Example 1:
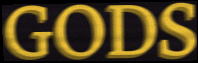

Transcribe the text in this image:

GODS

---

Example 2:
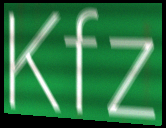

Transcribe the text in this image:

Kfz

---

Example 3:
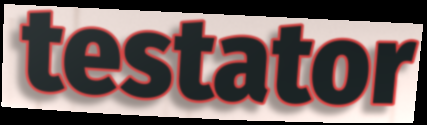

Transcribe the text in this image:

testator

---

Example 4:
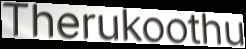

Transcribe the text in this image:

Therukoothu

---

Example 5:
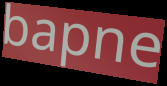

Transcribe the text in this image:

bapne